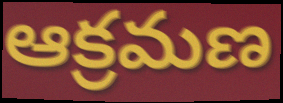
ఆక్రమణ